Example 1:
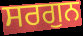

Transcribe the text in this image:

ਸਰਗੁਨ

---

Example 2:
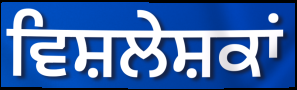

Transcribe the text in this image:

ਵਿਸ਼ਲੇਸ਼ਕਾਂ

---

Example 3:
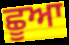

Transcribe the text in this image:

ਛੂਆ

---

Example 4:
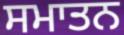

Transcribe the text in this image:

ਸਮਾਤਨ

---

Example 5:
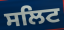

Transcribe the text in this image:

ਸਲਿਟ